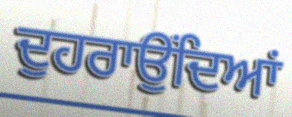
ਦੁਹਰਾਉਂਦਿਆਂ